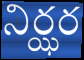
నిర్ఝర